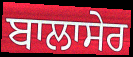
ਬਾਲਾਸੇਰ